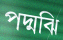
পদ্মঝি